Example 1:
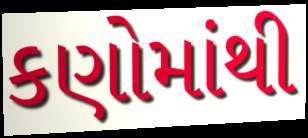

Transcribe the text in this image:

કણોમાંથી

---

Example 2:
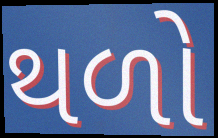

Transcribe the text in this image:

થળો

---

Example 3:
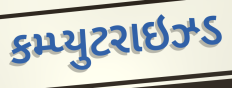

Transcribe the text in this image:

કમ્પ્યુટરાઇઝ્ડ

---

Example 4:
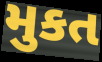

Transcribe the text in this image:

મુકત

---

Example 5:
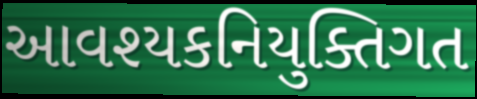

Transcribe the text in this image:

આવશ્યકનિયુક્તિગત